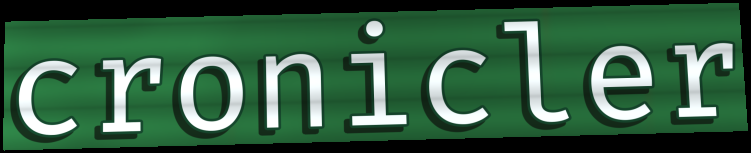
cronicler